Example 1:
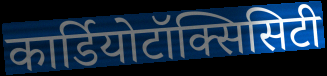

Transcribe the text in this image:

कार्डियोटॉक्सिसिटी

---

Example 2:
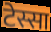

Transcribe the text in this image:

टेस्सा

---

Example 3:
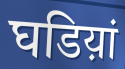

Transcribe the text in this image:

घडिय़ां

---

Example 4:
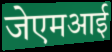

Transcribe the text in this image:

जेएमआई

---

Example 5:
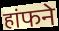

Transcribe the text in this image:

हांफने